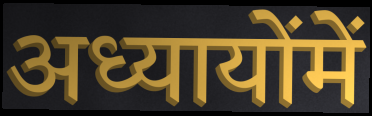
अध्यायोंमें